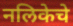
नलिकेचे